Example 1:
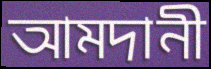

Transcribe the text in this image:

আমদানী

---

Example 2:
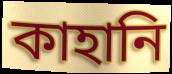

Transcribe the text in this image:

কাহানি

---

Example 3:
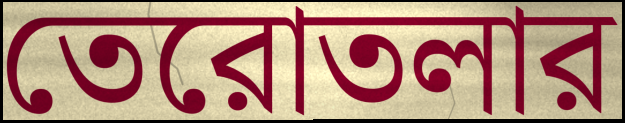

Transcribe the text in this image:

তেরোতলার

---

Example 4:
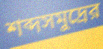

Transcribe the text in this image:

শব্দসমুদ্রের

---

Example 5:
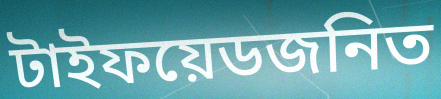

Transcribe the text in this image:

টাইফয়েডজনিত